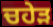
ਚਹੇੜ